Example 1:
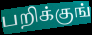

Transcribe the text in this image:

பறிக்குங்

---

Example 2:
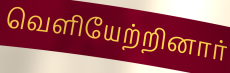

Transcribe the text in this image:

வெளியேற்றினார்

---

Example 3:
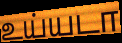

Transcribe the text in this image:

உய்யடா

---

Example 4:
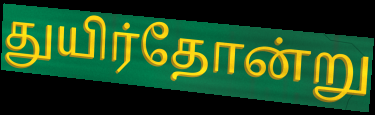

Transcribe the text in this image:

துயிர்தோன்று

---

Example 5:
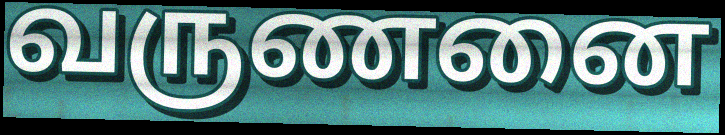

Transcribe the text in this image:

வருணனை